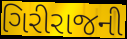
ગિરીરાજની